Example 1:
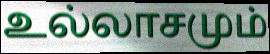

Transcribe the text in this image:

உல்லாசமும்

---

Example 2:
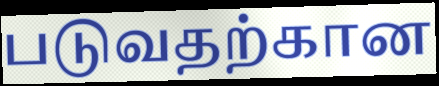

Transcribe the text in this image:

படுவதற்கான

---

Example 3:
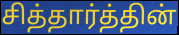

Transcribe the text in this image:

சித்தார்த்தின்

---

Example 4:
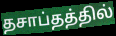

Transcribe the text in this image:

தசாப்தத்தில்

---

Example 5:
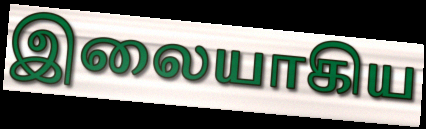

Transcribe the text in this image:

இலையாகிய